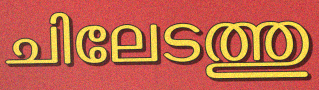
ചിലേടത്തു